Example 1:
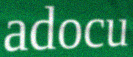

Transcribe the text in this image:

adocu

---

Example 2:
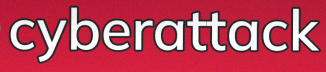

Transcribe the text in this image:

cyberattack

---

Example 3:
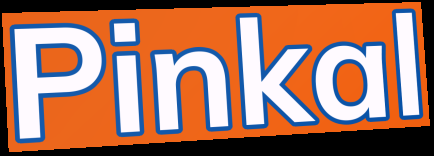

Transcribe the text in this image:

Pinkal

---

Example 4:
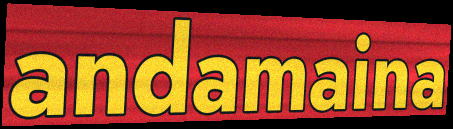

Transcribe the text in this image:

andamaina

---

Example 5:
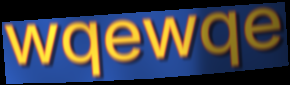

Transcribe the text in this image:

wqewqe